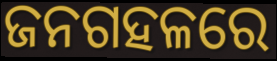
ଜନଗହଳରେ